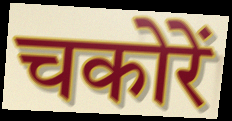
चकोरें